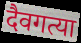
दैवगत्या